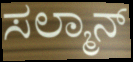
ಸಲ್ಮಾನ್